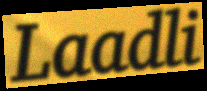
Laadli